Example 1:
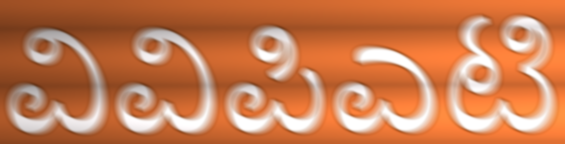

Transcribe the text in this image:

ವಿವಿಪಿಎಟಿ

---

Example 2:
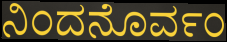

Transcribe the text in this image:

ನಿಂದನೊರ್ವಂ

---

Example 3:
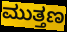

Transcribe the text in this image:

ಮುತ್ತಣ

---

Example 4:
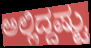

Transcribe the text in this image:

ಅಲ್ಲಿದ್ದಷ್ಟು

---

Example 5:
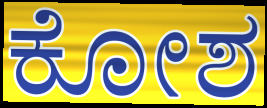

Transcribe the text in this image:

ಕೋಶ